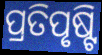
ପ୍ରତିପୃଷ୍ଟି